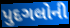
પુદગલોની